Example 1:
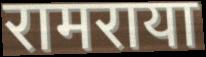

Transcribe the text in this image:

रामराया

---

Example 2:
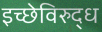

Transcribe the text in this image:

इच्छेविरुद्ध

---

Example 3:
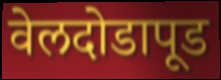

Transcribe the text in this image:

वेलदोडापूड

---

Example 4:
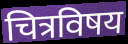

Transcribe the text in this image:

चित्रविषय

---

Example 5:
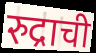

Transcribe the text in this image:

रुद्राची